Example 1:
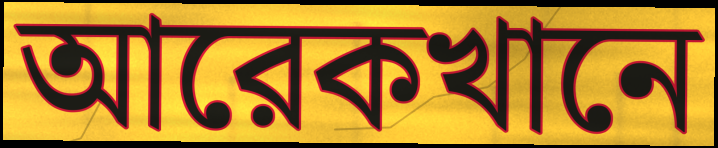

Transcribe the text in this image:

আরেকখানে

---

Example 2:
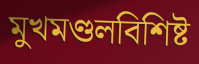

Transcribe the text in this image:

মুখমণ্ডলবিশিষ্ট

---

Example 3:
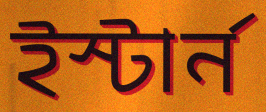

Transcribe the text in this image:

ইস্টার্ন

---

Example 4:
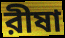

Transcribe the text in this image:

রীষা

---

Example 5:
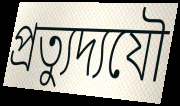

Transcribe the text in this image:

প্রত্যুদ্যযৌ